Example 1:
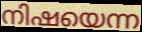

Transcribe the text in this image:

നിഷയെന്ന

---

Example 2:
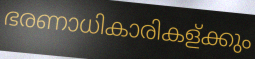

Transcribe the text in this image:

ഭരണാധികാരികള്ക്കും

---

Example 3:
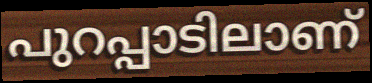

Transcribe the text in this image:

പുറപ്പാടിലാണ്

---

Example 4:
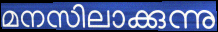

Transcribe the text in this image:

മനസിലാക്കുന്നു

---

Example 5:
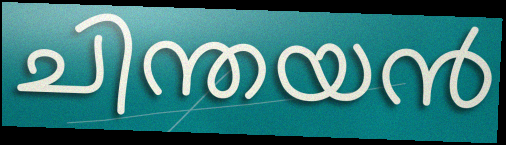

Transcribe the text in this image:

ചിന്തയൻ